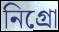
নিগ্ৰো